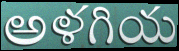
అళగియ